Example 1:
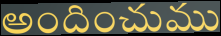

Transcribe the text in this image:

అందించుము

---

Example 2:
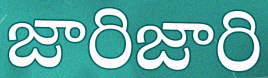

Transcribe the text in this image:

జారిజారి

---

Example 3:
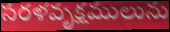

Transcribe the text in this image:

సరళవృక్షములును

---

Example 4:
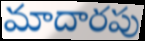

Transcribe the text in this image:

మాదారపు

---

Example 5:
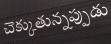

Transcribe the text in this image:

చెక్కుతున్నప్పుడు